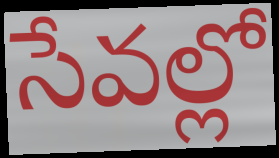
సేవల్లో